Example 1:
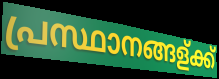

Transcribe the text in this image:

പ്രസ്ഥാനങ്ങള്ക്ക്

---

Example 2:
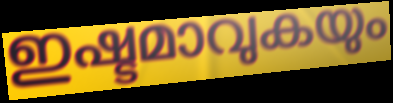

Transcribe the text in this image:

ഇഷ്ടമാവുകയും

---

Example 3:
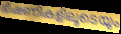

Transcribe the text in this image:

ഭീഷണികളിലൂടെയും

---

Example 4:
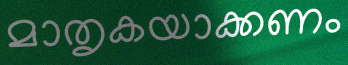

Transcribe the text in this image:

മാതൃകയാക്കണം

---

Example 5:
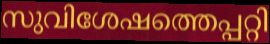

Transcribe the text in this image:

സുവിശേഷത്തെപ്പറ്റി